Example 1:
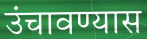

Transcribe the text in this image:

उंचावण्यास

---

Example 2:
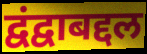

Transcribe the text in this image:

द्वंद्वाबद्दल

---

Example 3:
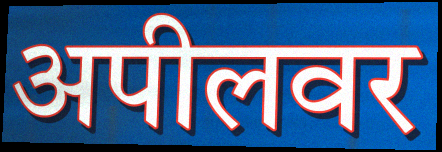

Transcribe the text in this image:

अपीलवर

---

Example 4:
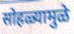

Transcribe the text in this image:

सोहळ्यामुळे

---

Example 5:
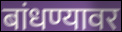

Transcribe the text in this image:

बांधण्यावर